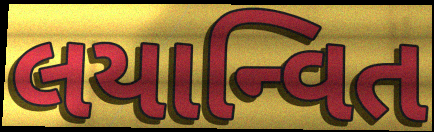
લયાન્વિત